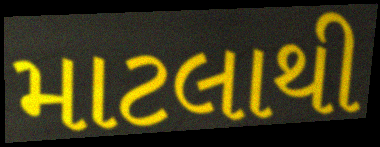
માટલાથી